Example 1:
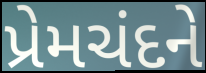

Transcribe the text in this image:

પ્રેમચંદને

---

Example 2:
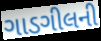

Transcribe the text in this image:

ગાડગીલની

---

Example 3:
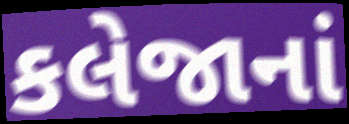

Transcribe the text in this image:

કલેજાનાં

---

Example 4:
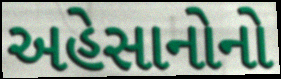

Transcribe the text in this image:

અહેસાનોનો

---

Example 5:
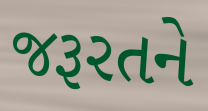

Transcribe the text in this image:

જરૂરતને